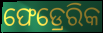
ଫେଡ୍ରେରିକ